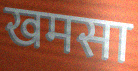
खमसा